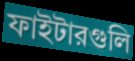
ফাইটারগুলি